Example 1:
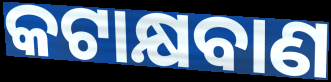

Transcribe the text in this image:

କଟାକ୍ଷବାଣ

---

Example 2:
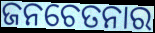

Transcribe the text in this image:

ଜନଚେତନାର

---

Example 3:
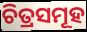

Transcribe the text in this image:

ଚିତ୍ରସମୂହ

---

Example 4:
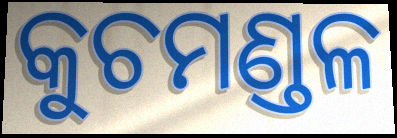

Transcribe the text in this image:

କୁଚମଣ୍ଡଳ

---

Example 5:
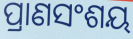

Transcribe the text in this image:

ପ୍ରାଣସଂଶୟ